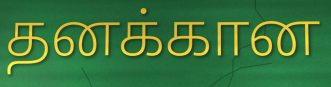
தனக்கான